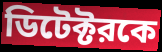
ডিটেক্টরকে